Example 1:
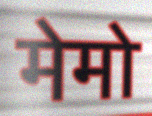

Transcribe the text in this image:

मेमो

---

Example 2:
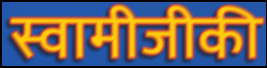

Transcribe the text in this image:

स्वामीजीकी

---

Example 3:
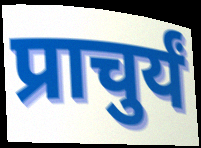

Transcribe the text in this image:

प्राचुर्यं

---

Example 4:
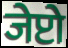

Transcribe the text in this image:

जेप्टो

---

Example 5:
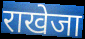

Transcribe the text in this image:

राखेजा